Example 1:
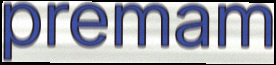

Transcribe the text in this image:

premam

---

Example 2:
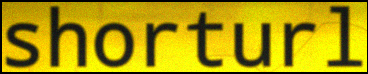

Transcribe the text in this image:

shorturl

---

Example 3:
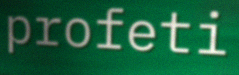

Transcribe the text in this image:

profeti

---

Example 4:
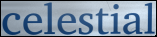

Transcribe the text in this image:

celestial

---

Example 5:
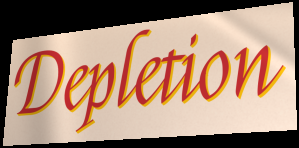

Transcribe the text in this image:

Depletion